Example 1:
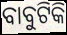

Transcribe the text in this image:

ବାବୁଟିକି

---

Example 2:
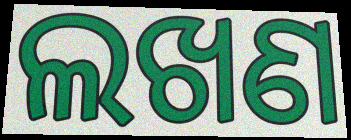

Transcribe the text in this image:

ଲଖଣ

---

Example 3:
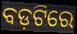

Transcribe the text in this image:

ବଡ଼ଟିରେ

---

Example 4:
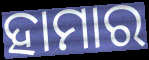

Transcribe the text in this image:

ହାମାର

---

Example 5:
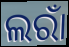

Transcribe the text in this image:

ଲରାଁ